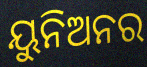
ୟୁନିଅନର